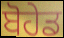
ਬੋਹੇਡ